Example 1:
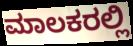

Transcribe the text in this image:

ಮಾಲಕರಲ್ಲಿ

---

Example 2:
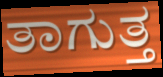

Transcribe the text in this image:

ತಾಗುತ್ತ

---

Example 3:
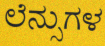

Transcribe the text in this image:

ಲೆನ್ಸುಗಳ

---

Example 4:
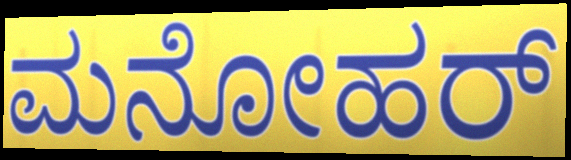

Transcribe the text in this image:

ಮನೋಹರ್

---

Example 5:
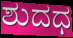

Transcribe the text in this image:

ಶುದಧ